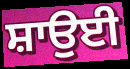
ਸ਼ਾਉਈ